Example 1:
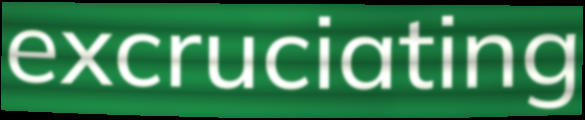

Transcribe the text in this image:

excruciating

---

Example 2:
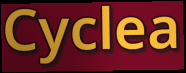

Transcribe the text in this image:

Cyclea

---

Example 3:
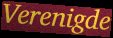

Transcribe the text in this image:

Verenigde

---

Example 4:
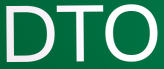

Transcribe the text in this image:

DTO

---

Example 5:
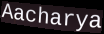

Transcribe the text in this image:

Aacharya